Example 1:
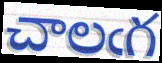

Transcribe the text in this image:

చాలఁగ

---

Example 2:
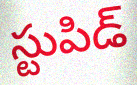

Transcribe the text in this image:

స్టుపిడ్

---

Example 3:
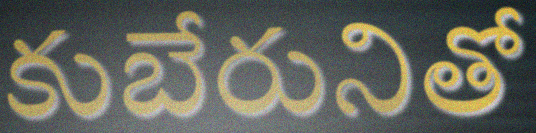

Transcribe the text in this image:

కుబేరునితో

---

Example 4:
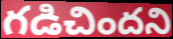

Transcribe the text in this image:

గడిచిందని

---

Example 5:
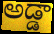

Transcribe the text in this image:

అడ్డా